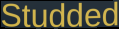
Studded